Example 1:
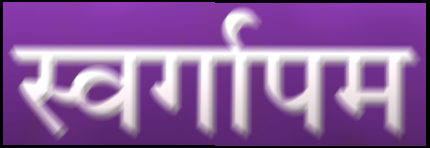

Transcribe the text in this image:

स्वर्गापम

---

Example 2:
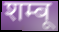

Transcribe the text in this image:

शम्बू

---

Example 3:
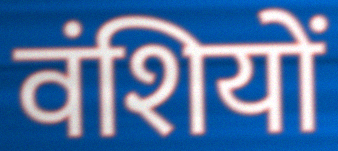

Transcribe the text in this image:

वंशियों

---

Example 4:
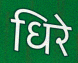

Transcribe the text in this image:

धिरे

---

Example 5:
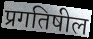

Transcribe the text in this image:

प्रगतिषील